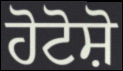
ਹੋਟੋਸ਼ੋ